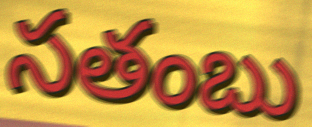
సతంబు